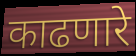
काढणारे